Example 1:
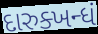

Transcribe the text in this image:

દારુક્ખન્ધં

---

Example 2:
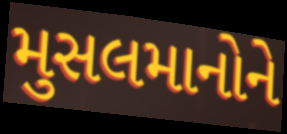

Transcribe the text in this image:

મુસલમાનોને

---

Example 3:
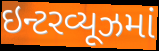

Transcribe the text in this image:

ઇન્ટરવ્યૂઝમાં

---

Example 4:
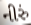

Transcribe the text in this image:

નીરું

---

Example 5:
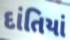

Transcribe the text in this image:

દાંતિયાં